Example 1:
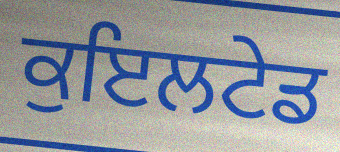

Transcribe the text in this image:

ਕੁਇਲਟੇਡ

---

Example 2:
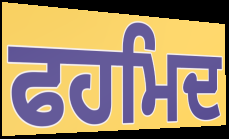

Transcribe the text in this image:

ਫਹਮਿਦ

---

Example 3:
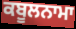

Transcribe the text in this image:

ਕਬੂਲਨਾਮਾ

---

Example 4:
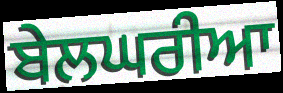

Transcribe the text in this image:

ਬੇਲਘਰੀਆ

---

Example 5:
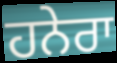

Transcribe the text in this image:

ਹਨੇਰਾ